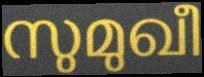
സുമുഖീ